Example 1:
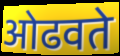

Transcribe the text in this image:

ओढवते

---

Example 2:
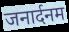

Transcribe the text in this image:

जनार्दनम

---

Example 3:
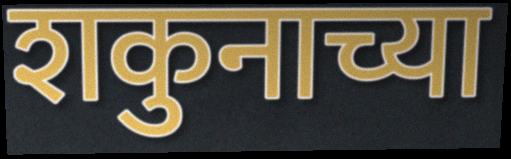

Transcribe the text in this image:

शकुनाच्या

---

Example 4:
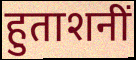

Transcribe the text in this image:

हुताशनीं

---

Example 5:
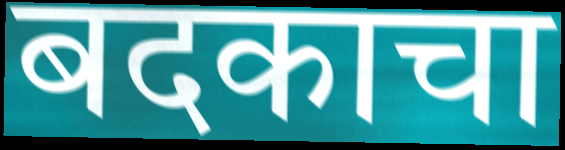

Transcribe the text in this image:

बदकाचा